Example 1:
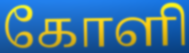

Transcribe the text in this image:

கோளி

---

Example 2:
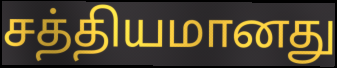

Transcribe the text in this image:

சத்தியமானது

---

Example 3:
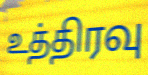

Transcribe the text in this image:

உத்திரவு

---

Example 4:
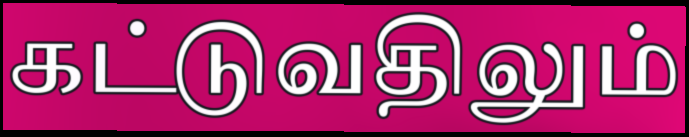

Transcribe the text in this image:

கட்டுவதிலும்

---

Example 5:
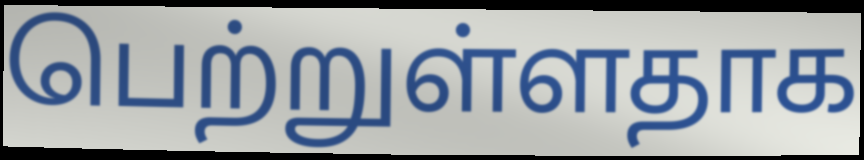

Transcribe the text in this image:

பெற்றுள்ளதாக